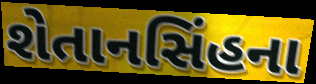
શેતાનસિંહના